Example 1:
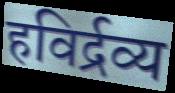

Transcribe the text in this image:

हविर्द्रव्य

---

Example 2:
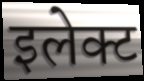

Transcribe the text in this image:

इलेक्ट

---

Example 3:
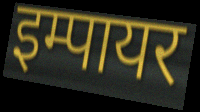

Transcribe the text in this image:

इम्पायर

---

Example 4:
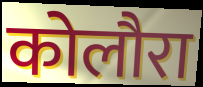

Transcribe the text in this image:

कोलौरा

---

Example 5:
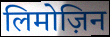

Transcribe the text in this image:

लिमोज़िन